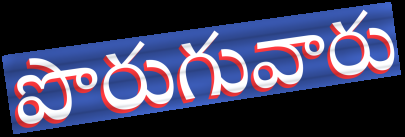
పొరుగువారు